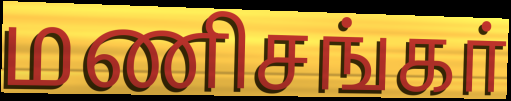
மணிசங்கர்